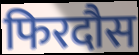
फिरदौस